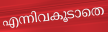
എന്നിവകൂടാതെ